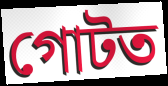
গোটত